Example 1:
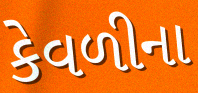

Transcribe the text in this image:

કેવળીના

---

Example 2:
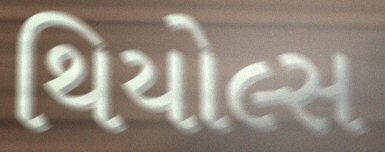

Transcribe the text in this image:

થિયોલ્સ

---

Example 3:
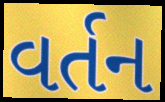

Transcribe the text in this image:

વર્તન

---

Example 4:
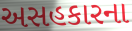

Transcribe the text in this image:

અસહકારના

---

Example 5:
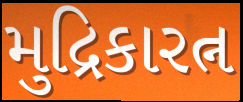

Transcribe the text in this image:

મુદ્રિકારત્ન